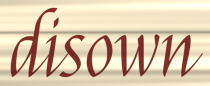
disown